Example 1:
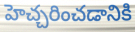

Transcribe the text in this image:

హెచ్చరించడానికి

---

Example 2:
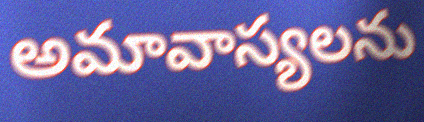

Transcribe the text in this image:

అమావాస్యలను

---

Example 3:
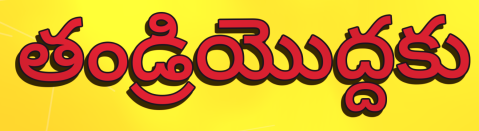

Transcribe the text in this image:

తండ్రియొద్దకు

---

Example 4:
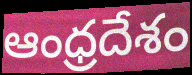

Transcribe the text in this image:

ఆంధ్రదేశం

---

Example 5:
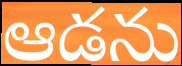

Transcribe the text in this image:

ఆడను